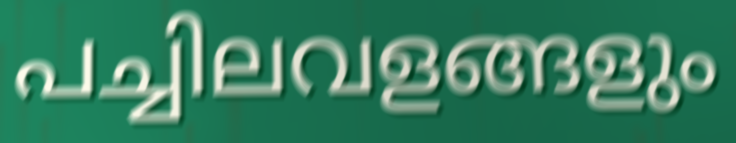
പച്ചിലവളങ്ങളും